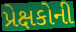
પ્રેક્ષકોની